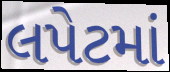
લપેટમાં